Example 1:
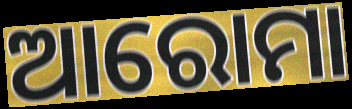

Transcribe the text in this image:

ଆରୋମା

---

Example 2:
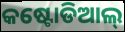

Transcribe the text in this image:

କଷ୍ଟୋଡିଆଲ୍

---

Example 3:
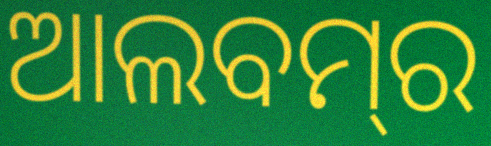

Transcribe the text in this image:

ଆଲବମ୍‌ର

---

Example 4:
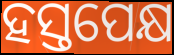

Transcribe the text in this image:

ହସ୍ତପେକ୍ଷ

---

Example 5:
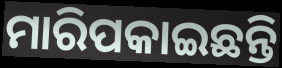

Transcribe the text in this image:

ମାରିପକାଇଛନ୍ତି